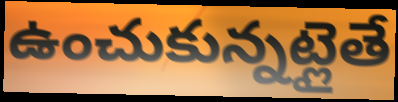
ఉంచుకున్నట్లైతే